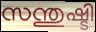
സന്തുഷ്ടി